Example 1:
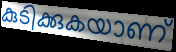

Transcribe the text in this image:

കുടിക്കുകയാണ്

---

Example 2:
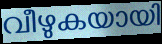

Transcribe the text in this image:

വീഴുകയായി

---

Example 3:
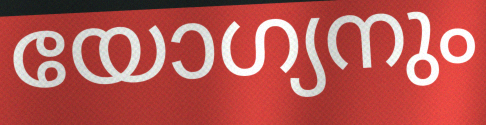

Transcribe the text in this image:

യോഗ്യനും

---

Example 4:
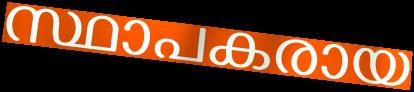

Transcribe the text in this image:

സ്ഥാപകരായ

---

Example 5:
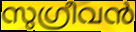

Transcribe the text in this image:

സുഗ്രീവൻ